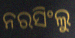
ନରସିଂଲୁ